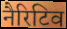
नैरिटिव